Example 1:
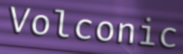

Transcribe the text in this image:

Volconic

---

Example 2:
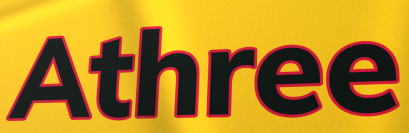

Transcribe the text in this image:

Athree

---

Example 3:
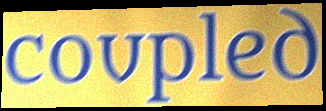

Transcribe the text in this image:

coupled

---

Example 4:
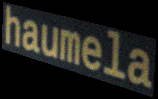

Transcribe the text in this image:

haumela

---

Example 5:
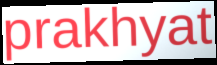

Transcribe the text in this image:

prakhyat